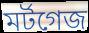
মর্টগেজ